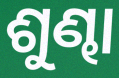
ଶୁଣ୍ଢା